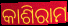
କାଶିରାମ